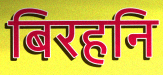
बिरहनि